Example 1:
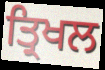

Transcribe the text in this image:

ਤ੍ਰਿਖਲ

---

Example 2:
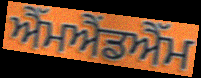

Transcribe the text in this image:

ਐੱਮਐਂਡਐੱਮ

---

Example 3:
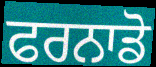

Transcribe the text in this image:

ਫਰਨਾਡੋ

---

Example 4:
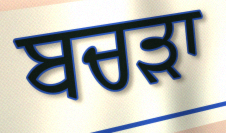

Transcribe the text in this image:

ਬਚੜਾ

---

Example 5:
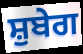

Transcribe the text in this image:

ਸ਼ੁਬੇਗ